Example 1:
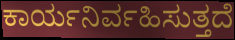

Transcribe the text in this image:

ಕಾರ್ಯನಿರ್ವಹಿಸುತ್ತದೆ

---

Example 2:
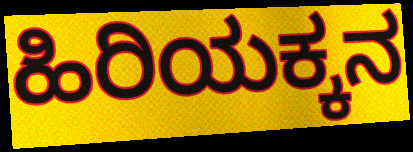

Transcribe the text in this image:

ಹಿರಿಯಕ್ಕನ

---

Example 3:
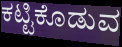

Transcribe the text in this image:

ಕಟ್ಟಿಕೊಡುವ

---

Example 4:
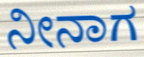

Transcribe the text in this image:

ನೀನಾಗ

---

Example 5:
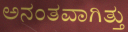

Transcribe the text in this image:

ಅನಂತವಾಗಿತ್ತು